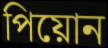
পিয়োন